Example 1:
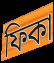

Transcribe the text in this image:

ফিকা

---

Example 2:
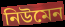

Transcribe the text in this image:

নিউমেন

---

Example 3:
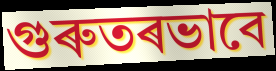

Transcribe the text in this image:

গুৰুতৰভাবে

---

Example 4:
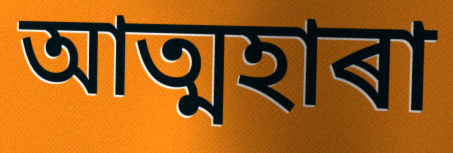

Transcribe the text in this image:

আত্মহাৰা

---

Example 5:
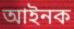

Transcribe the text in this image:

আইনক